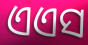
ଏଏସ